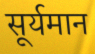
सूर्यमान